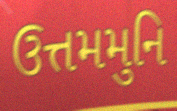
ઉત્તમમુનિ